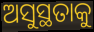
ଅସୁସ୍ଥତାକୁ